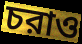
চরাও